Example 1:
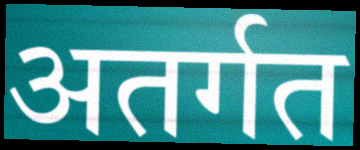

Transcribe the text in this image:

अतर्गत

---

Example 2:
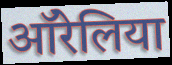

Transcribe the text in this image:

ऑरेलिया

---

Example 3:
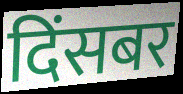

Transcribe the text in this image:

दिंसबर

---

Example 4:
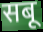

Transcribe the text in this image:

सबू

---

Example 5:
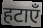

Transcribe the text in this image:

हटाएँ